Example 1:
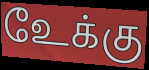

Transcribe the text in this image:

உேக்கு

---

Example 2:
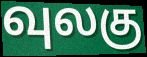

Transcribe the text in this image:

வுலகு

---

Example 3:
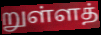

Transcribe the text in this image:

றுள்ளத்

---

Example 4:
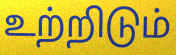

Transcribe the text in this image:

உற்றிடும்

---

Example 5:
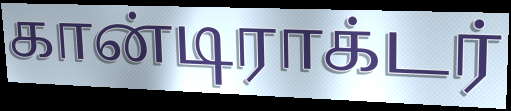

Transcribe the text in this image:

கான்டிராக்டர்